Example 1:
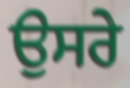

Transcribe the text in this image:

ਉਸਰੇ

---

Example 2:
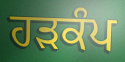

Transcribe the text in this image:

ਹਡ਼ਕੰਪ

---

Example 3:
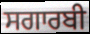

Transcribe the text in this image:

ਸਗਾਰਬੀ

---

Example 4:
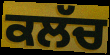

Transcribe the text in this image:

ਕਲੱਚ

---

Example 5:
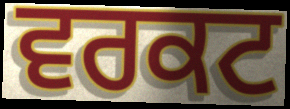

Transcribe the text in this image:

ਵਰਕਟ